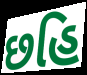
છહિ